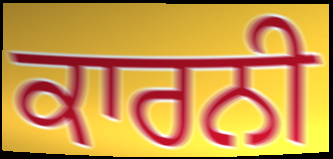
ਕਾਰਨੀ